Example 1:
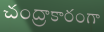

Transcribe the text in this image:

చంద్రాకారంగా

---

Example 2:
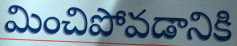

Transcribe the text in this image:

మించిపోవడానికి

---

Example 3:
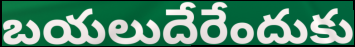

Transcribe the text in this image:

బయలుదేరేందుకు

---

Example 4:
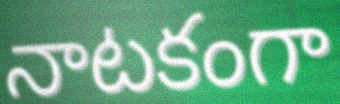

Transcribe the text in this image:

నాటకంగా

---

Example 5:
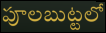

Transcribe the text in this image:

పూలబుట్టలో